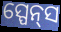
ସ୍ପେନ୍‌ସ